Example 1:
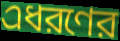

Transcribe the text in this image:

এধরণের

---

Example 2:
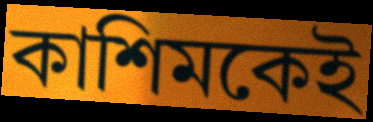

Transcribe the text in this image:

কাশিমকেই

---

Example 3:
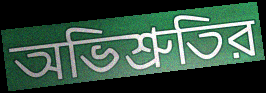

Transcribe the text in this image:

অভিশ্রুতির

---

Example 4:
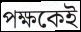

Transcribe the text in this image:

পক্ষকেই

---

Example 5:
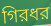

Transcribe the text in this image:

গিরধর